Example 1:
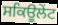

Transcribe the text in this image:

ਸਕਿਊਲੇਂਟ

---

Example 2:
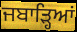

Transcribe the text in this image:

ਜਬਾੜ੍ਹਿਆਂ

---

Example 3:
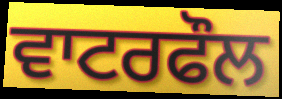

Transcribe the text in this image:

ਵਾਟਰਫੌਲ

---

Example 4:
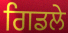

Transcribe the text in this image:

ਗਿਡਲੇ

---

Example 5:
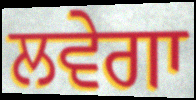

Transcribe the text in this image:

ਲਵੇਗਾ